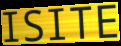
ISITE